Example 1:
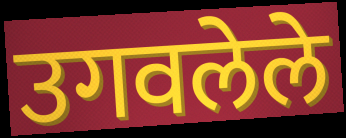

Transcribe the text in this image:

उगवलेले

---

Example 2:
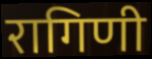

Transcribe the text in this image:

रागिणी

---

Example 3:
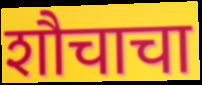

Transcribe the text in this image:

शौचाचा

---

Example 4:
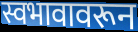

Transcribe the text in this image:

स्वभावावरून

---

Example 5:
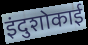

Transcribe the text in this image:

इंदुशोकाई